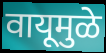
वायूमुळे